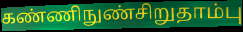
கண்ணிநுண்சிறுதாம்பு